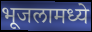
भूजलामध्ये